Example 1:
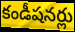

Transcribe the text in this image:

కండీషనర్లు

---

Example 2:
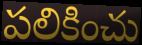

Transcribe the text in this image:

పలికించు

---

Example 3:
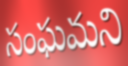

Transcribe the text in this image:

సంఘమని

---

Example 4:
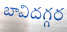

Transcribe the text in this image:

బావిదగ్గర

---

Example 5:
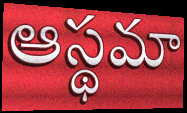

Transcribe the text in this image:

ఆస్థమా